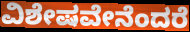
ವಿಶೇಷವೇನೆಂದರೆ